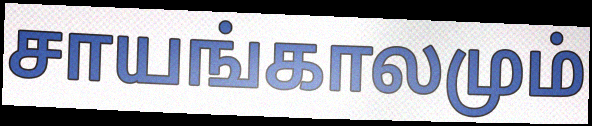
சாயங்காலமும்